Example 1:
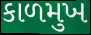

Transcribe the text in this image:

કાળમુખ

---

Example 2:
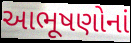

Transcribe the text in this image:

આભૂષણોનાં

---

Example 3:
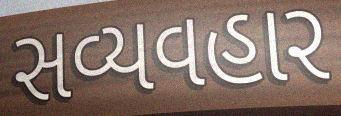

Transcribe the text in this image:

સવ્યવહાર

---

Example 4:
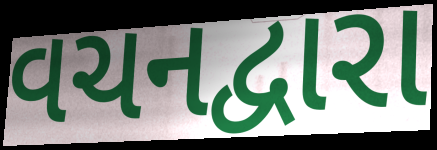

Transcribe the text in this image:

વચનદ્વારા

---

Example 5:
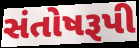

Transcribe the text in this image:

સંતોષરૂપી